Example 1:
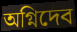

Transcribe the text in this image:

অগ্নিদেব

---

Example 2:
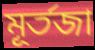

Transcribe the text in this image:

মূর্তজা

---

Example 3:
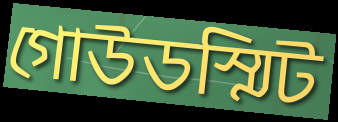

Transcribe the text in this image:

গোউডস্মিট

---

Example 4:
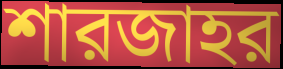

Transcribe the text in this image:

শারজাহর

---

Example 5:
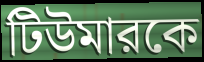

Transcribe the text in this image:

টিউমারকে